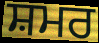
ਸ਼ਮਰ